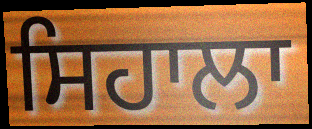
ਸਿਹਾਲਾ